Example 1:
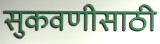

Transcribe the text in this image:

सुकवणीसाठी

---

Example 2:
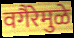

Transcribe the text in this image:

वगैरेमुळे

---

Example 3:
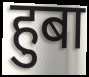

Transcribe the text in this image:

हुबा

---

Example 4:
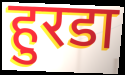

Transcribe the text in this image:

हुरडा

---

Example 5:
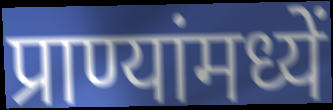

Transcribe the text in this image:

प्राण्यांमध्यें